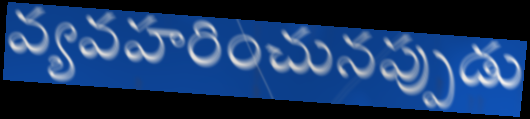
వ్యవహరించునప్పుడు